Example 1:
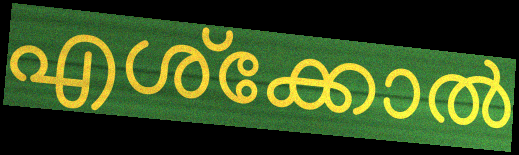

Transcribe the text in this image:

എശ്ക്കോൽ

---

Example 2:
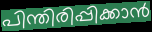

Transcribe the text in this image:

പിന്തിരിപ്പിക്കാൻ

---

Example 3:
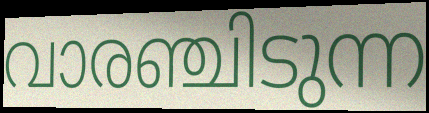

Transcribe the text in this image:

വാരഞ്ചിടുന്ന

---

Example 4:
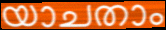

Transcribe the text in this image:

യാചതാം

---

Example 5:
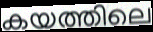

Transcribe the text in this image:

കയത്തിലെ